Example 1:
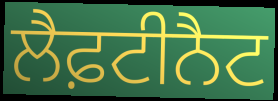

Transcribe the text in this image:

ਲੈਫ਼ਟੀਨੈਟ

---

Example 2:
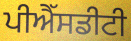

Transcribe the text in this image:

ਪੀਐੱਸਡੀਟੀ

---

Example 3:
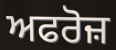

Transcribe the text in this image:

ਅਫਰੋਜ਼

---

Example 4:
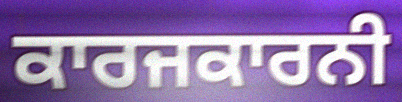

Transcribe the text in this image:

ਕਾਰਜਕਾਰਨੀ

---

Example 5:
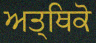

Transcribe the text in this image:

ਅਤ੍ਥਿਕੋ